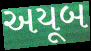
અયૂબ